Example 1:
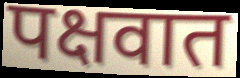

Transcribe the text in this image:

पक्षवात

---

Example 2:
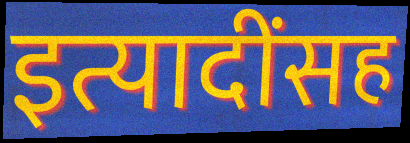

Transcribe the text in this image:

इत्यादींसह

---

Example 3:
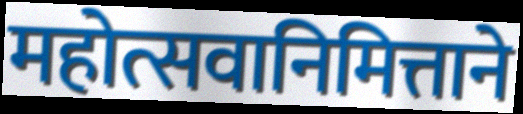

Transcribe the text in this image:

महोत्सवानिमित्ताने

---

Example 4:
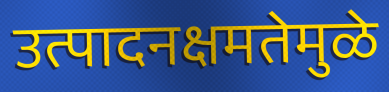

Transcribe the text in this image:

उत्पादनक्षमतेमुळे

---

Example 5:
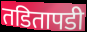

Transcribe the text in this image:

तडितापडी